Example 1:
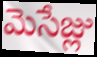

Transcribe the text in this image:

మెసేజ్లు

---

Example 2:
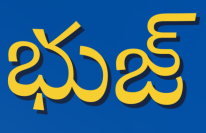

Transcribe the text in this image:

భుజ్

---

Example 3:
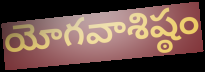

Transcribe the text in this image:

యోగవాశిష్ఠం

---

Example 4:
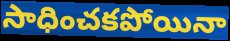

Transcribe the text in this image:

సాధించకపోయినా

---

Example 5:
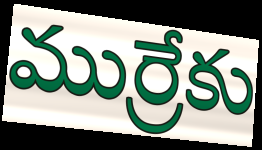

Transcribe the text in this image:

ముర్రేకు